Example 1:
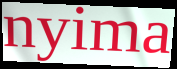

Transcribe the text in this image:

nyima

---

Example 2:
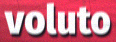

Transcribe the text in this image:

voluto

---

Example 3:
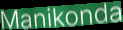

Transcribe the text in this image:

Manikonda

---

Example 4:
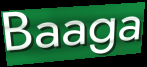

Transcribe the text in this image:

Baaga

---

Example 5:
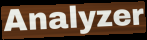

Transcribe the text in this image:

Analyzer